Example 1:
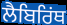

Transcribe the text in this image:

ਲੈਬਿਰਿਂਥ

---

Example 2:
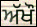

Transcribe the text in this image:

ਅੱਖੌ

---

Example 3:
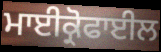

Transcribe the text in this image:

ਮਾਈਕ੍ਰੋਫਾਈਲ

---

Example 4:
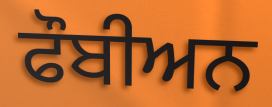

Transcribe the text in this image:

ਫੌਬੀਅਨ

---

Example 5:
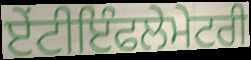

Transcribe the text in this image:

ਏੰਟੀਇੰਫਲੇਮੇਟਰੀ